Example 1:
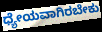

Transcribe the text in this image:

ಧ್ಯೇಯವಾಗಿರಬೇಕು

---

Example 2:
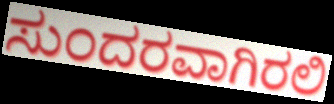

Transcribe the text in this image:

ಸುಂದರವಾಗಿರಲಿ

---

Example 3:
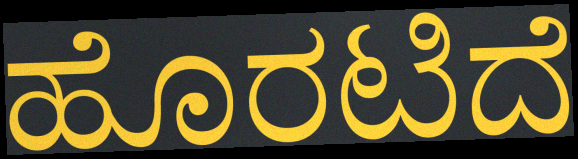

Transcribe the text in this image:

ಹೊರಟಿದೆ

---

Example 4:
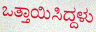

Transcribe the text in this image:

ಒತ್ತಾಯಿಸಿದ್ದಳು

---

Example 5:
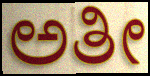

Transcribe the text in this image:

ಅತೀ